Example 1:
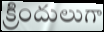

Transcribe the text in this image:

క్రిందులుగా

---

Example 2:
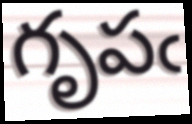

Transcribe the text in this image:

గృపఁ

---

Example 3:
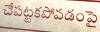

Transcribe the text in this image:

చేపట్టకపోవడంపై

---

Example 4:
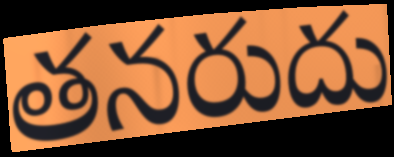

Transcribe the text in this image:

తనరుదు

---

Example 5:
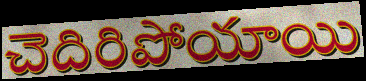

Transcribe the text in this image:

చెదిరిపోయాయి